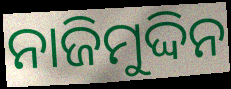
ନାଜିମୁଦ୍ଦିନ